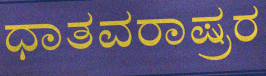
ಧಾತವರಾಷ್ರರ